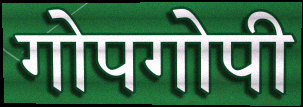
गोपगोपी